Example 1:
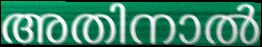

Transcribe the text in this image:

അതിനാൽ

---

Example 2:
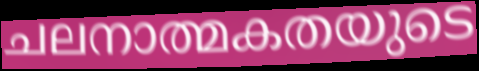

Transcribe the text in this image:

ചലനാത്മകതയുടെ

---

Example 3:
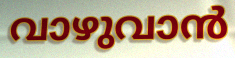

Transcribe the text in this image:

വാഴുവാൻ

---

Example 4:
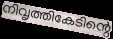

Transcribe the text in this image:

നിവൃത്തികേടിന്റെ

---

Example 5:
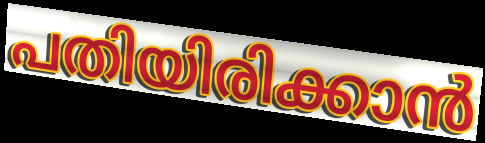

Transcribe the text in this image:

പതിയിരിക്കാൻ